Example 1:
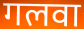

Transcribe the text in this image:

गलवा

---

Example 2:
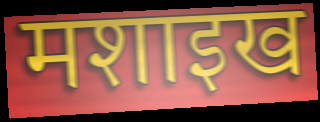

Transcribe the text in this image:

मशाइख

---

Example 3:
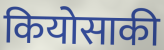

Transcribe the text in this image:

कियोसाकी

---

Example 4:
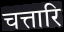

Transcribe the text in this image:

चत्तारि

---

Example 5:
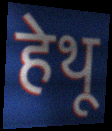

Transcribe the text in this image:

हेथू